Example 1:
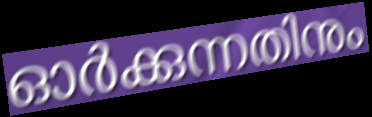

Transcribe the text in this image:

ഓർക്കുന്നതിനും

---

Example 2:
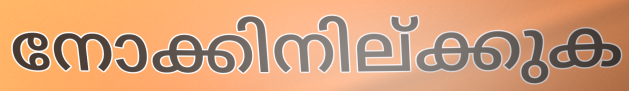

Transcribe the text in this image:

നോക്കിനില്ക്കുക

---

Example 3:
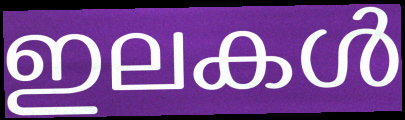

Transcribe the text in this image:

ഇലകൾ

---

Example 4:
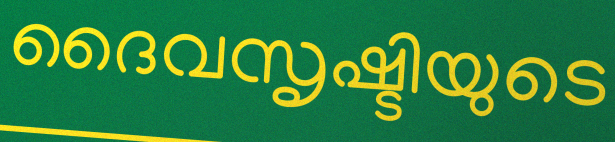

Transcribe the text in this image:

ദൈവസൃഷ്ടിയുടെ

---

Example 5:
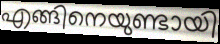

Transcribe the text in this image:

എങ്ങിനെയുണ്ടായി